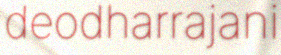
deodharrajani